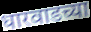
धारवाडच्या